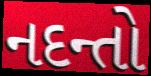
નદન્તો